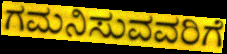
ಗಮನಿಸುವವರಿಗೆ